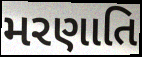
મરણાતિ